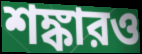
শঙ্কারও